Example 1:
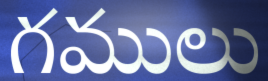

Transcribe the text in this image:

గములు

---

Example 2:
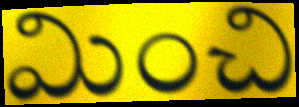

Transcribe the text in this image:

మించి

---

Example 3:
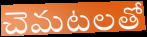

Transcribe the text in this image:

చెమటలతో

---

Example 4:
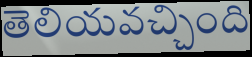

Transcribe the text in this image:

తెలియవచ్చింది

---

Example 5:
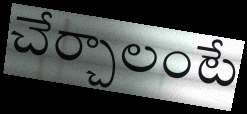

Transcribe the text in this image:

చేర్చాలంటే